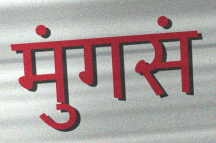
मुंगसं